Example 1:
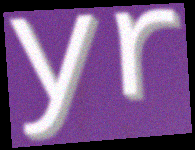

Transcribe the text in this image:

yr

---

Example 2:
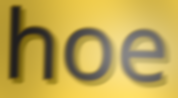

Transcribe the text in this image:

hoe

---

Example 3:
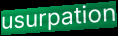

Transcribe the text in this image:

usurpation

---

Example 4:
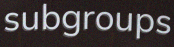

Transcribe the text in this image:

subgroups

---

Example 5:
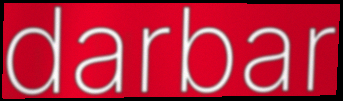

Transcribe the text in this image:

darbar